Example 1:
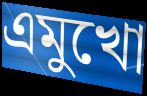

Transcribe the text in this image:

এমুখো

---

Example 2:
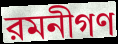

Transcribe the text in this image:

রমনীগণ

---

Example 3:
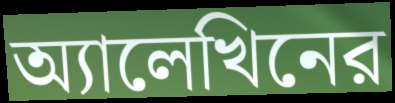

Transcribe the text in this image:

অ্যালেখিনের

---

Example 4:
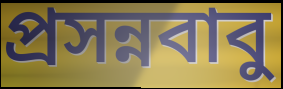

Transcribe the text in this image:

প্রসন্নবাবু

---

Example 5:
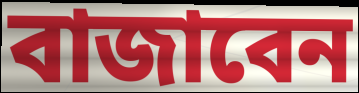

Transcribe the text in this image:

বাজাবেন